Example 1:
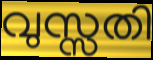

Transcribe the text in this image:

വുസ്സതി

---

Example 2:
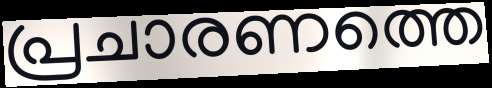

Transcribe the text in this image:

പ്രചാരണത്തെ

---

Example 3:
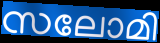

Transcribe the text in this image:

സലോമി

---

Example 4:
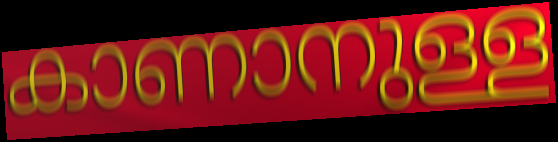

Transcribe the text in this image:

കാണാനുള്ള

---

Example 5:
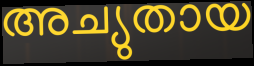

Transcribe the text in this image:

അച്യുതായ